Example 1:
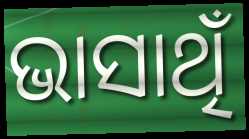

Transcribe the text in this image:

ଭାସାଥିଁ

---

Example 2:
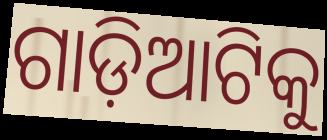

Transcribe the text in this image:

ଗାଡ଼ିଆଟିକୁ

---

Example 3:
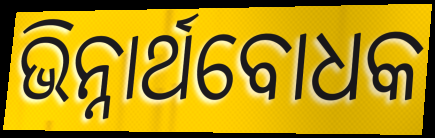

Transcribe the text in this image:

ଭିନ୍ନାର୍ଥବୋଧକ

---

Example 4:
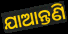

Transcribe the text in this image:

ଯାଆନ୍ତଣି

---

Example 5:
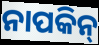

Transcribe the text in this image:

ନାପକିନ୍